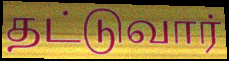
தட்டுவார்